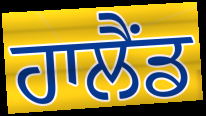
ਹਾਲੈਂਡ